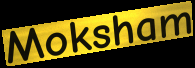
Moksham